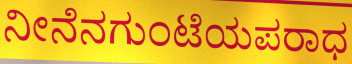
ನೀನೆನಗುಂಟೆಯಪರಾಧ